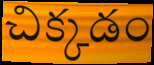
చిక్కడం